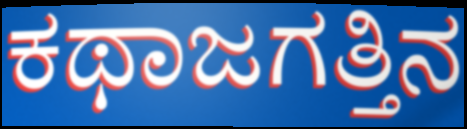
ಕಥಾಜಗತ್ತಿನ